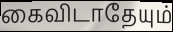
கைவிடாதேயும்